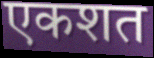
एकशत